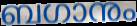
ബഗാനും